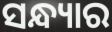
ସନ୍ଧ୍ୟାର